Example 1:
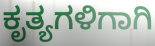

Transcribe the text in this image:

ಕೃತ್ಯಗಳಿಗಾಗಿ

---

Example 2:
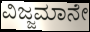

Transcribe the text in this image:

ವಿಜ್ಜಮಾನೇ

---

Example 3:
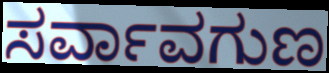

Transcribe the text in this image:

ಸರ್ವಾವಗುಣ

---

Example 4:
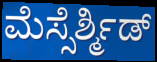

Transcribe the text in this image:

ಮೆಸ್ಸೆರ್ಶ್ಮಿಡ್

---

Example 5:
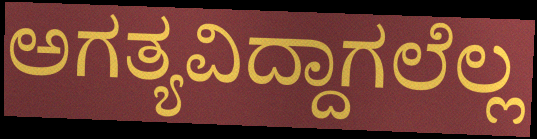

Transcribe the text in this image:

ಅಗತ್ಯವಿದ್ದಾಗಲೆಲ್ಲ